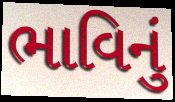
ભાવિનું